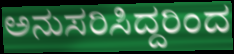
ಅನುಸರಿಸಿದ್ದರಿಂದ